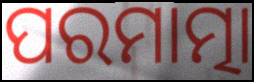
ପରମାତ୍ମା